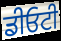
ਡੀਓਟੀ